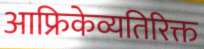
आफ्रिकेव्यतिरिक्त